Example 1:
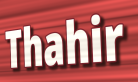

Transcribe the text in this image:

Thahir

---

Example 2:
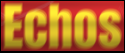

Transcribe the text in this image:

Echos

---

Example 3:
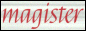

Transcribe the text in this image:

magister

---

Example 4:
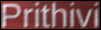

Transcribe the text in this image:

Prithivi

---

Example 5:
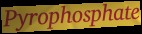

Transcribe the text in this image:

Pyrophosphate